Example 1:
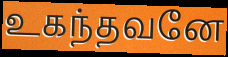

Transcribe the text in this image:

உகந்தவனே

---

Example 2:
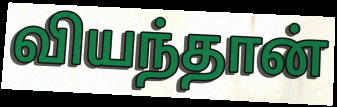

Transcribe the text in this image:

வியந்தான்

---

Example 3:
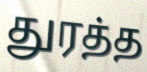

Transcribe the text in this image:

துரத்த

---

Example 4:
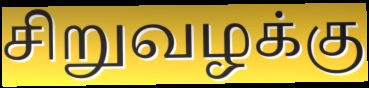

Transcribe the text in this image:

சிறுவழக்கு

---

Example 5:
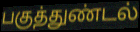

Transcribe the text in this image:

பகுத்துண்டல்